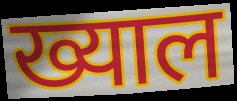
ख्याल